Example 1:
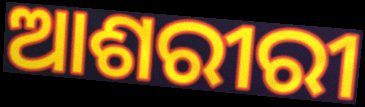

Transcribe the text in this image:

ଆଶରୀରୀ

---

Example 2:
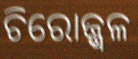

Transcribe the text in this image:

ଚିରୋଜ୍ଜ୍ଵଳ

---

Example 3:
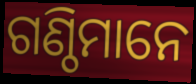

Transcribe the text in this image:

ଗଣ୍ଠିମାନେ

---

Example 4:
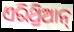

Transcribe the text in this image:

ଏରିଥ୍ରିଆନ୍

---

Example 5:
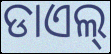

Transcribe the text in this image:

ଡାଏଲ୍